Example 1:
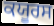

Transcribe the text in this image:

ਕਯੂਰਸ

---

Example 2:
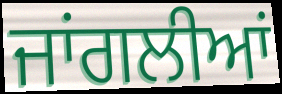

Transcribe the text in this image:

ਜਾਂਗਲੀਆਂ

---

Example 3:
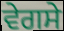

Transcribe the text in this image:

ਵੇਗਸੇ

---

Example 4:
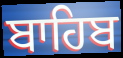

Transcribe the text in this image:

ਬਾਹਿਬ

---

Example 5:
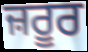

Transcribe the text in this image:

ਜ਼ਰੂਰ